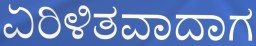
ಏರಿಳಿತವಾದಾಗ